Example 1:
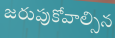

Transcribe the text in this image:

జరుపుకోవాల్సిన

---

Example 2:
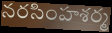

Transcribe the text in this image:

నరసింహశర్మ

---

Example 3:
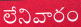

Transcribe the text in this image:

లేనివారం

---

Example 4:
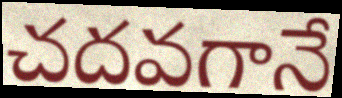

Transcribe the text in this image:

చదవగానే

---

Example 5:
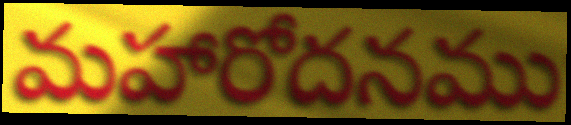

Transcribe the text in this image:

మహారోదనము